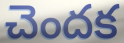
చెందక